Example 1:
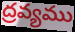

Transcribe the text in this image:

ద్రవ్యము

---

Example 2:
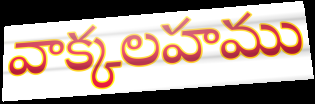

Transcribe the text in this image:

వాక్కలహము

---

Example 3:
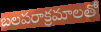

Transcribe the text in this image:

బలపరాక్రమాలతో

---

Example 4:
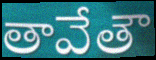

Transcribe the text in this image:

తావేతౌ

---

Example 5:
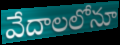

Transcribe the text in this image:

వేదాలలోనూ